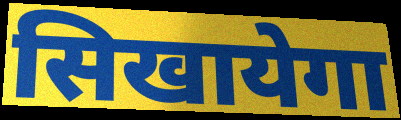
सिखायेगा